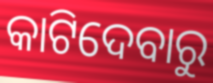
କାଟିଦେବାରୁ